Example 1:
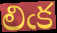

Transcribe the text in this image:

లిఁక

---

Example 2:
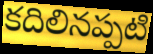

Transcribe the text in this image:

కదిలినప్పటి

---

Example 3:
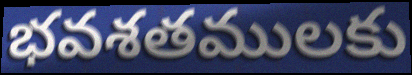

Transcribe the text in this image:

భవశతములకు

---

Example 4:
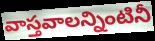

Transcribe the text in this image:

వాస్తవాలన్నింటినీ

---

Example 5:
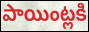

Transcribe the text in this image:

పాయింట్లకి